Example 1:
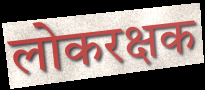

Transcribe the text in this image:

लोकरक्षक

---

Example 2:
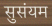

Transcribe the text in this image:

सुसंयम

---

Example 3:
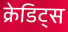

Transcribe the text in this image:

क्रेडिट्स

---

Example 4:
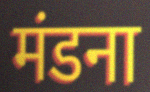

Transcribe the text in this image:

मंडना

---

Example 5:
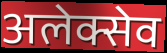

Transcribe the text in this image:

अलेक्सेव